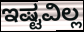
ಇಷ್ಟವಿಲ್ಲ